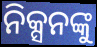
ନିକ୍ସନଙ୍କୁ